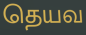
தெயவ